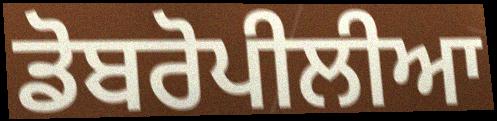
ਡੋਬਰੋਪੀਲੀਆ